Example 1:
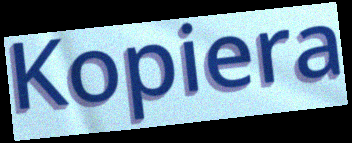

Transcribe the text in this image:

Kopiera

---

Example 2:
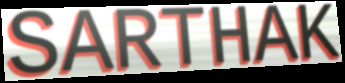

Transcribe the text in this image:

SARTHAK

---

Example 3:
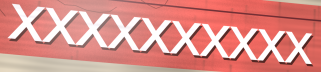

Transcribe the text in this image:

XXXXXXXXXX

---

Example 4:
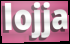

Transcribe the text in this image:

lojja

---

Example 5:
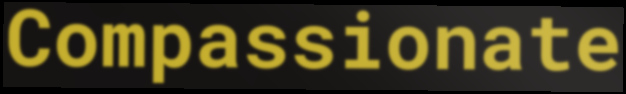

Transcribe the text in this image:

Compassionate